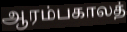
ஆரம்பகாலத்